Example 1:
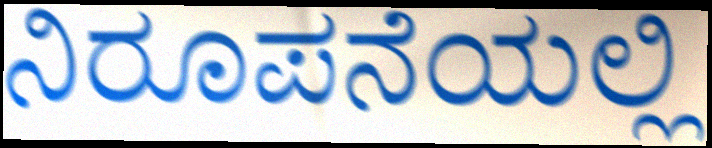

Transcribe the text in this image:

ನಿರೂಪನೆಯಲ್ಲಿ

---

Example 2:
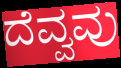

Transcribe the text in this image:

ದೆವ್ವವು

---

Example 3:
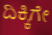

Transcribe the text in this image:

ದಿಕ್ಕಿಗೇ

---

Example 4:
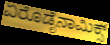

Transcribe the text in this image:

ಏರೊಡೈನಾಮಿಕ್ಸ್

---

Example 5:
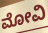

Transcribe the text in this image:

ಮೋವಿ